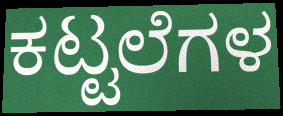
ಕಟ್ಟಲೆಗಳ